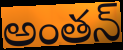
అంతన్